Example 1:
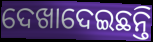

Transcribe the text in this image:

ଦେଖାଦେଇଛନ୍ତି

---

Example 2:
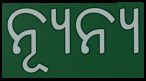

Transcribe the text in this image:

ନ୍ୟୂନ୍ୟ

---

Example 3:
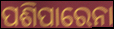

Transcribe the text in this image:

ପଶିପାରେନା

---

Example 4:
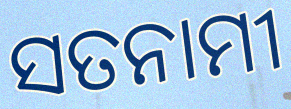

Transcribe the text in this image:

ସତନାମୀ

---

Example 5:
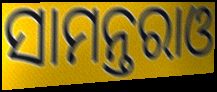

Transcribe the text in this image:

ସାମନ୍ତରାଓ